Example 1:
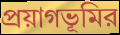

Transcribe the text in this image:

প্রয়াগভূমির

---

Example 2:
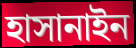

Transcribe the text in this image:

হাসানাইন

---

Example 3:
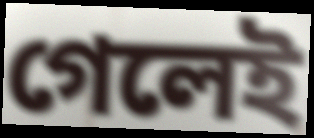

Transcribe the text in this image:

গেলেই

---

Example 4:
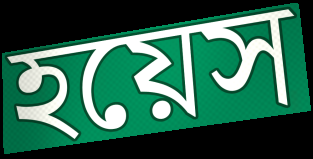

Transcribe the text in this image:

হয়েস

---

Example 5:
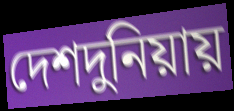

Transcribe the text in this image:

দেশদুনিয়ায়